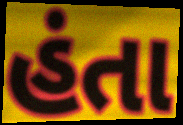
હંતા